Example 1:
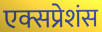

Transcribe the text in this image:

एक्सप्रेशंस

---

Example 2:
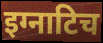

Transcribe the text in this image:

इग्नाटिच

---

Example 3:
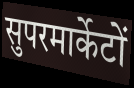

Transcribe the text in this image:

सुपरमार्केटों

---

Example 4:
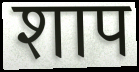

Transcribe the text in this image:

शाप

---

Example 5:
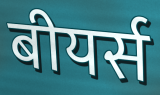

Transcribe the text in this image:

बीयर्स